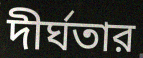
দীর্ঘতার